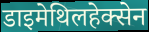
डाइमेथिलहेक्सेन